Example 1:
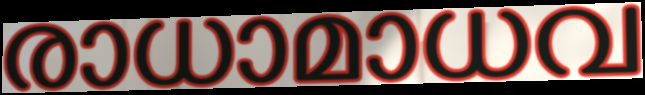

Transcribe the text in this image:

രാധാമാധവ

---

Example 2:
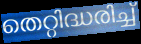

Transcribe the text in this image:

തെറ്റിദ്ധരിച്ച്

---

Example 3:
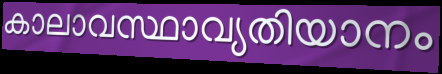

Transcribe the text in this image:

കാലാവസ്ഥാവ്യതിയാനം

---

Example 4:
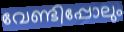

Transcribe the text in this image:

വേണ്ടിപ്പോലും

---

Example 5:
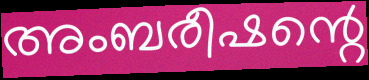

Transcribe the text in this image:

അംബരീഷന്റെ